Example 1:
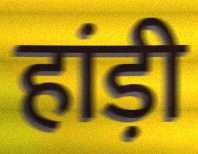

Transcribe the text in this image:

हांड़ी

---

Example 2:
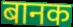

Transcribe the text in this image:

बानक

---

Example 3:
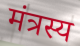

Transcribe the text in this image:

मंत्रस्य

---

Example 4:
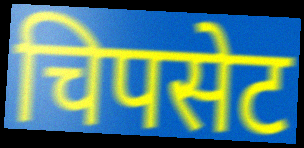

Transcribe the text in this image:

चिपसेट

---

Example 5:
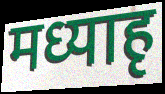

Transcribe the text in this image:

मध्याहृ